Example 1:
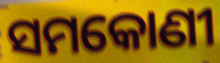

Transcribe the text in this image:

ସମକୋଣୀ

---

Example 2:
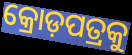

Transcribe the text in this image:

କ୍ରୋଡ଼ପତ୍ରକୁ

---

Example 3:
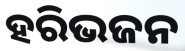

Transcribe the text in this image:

ହରିଭଜନ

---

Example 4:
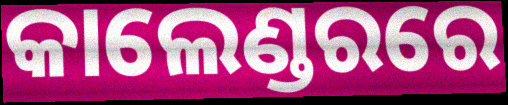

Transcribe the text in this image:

କାଲେଣ୍ଡରରେ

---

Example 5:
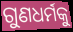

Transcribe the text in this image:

ଗୁଣଧର୍ମକୁ